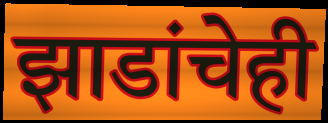
झाडांचेही